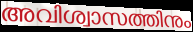
അവിശ്വാസത്തിനും